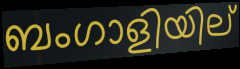
ബംഗാളിയില്